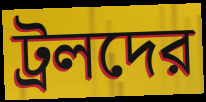
ট্রলদের